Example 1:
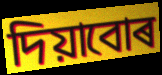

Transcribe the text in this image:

দিয়াবোৰ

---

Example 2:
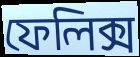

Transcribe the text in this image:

ফেলিক্স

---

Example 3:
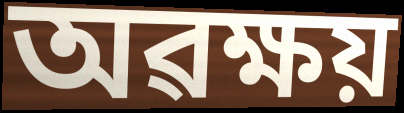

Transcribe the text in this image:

অৱক্ষয়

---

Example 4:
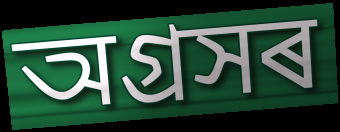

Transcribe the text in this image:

অগ্ৰসৰ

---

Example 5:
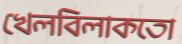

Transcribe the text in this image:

খেলবিলাকতো